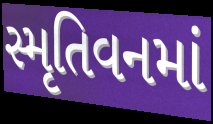
સ્મૃતિવનમાં